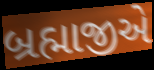
બ્રહ્માજીએ